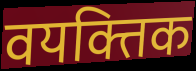
वयक्तिक